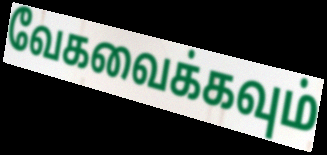
வேகவைக்கவும்